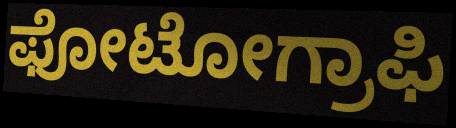
ಫೋಟೋಗ್ರಾಫಿ